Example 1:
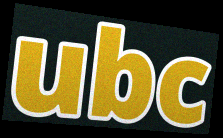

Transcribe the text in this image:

ubc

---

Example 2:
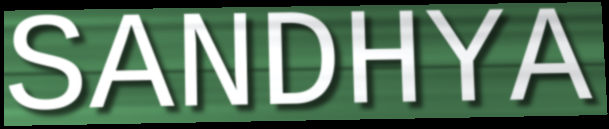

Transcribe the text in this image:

SANDHYA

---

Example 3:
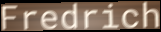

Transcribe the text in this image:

Fredrich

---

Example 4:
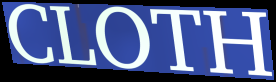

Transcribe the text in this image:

CLOTH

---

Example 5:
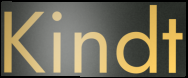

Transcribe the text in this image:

Kindt